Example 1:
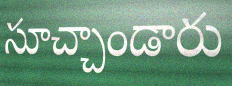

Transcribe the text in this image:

సూచ్చాండారు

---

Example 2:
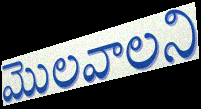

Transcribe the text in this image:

మొలవాలని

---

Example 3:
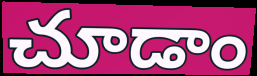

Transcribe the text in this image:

చూడాం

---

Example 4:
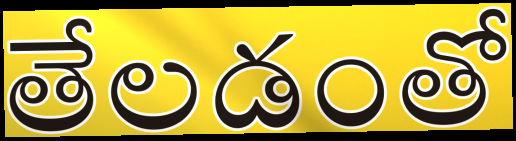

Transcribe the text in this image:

తేలడంతో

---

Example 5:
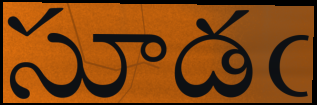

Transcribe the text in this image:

సూడఁ